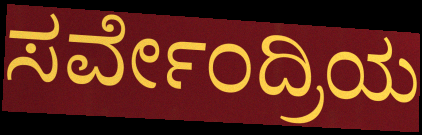
ಸರ್ವೇಂದ್ರಿಯ